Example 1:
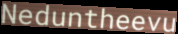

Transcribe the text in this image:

Neduntheevu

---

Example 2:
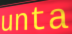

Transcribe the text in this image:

unta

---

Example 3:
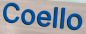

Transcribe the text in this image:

Coello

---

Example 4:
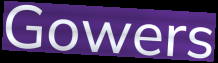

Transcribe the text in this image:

Gowers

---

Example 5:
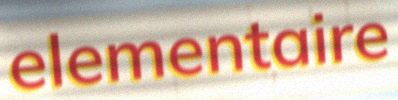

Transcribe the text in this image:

elementaire